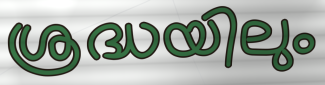
ശ്രദ്ധയിലും